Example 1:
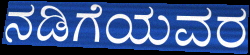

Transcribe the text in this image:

ನಡಿಗೆಯವರ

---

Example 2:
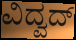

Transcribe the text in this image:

ವಿದ್ವದ್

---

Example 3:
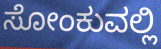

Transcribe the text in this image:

ಸೋಂಕುವಲ್ಲಿ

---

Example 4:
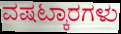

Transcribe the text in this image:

ವಷಟ್ಕಾರಗಳು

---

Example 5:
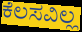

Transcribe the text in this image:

ಕೆಲಸವಿಲ್ಲ